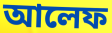
আলেফ